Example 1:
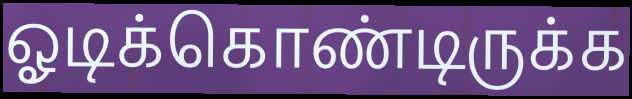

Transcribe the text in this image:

ஓடிக்கொண்டிருக்க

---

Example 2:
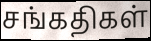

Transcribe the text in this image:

சங்கதிகள்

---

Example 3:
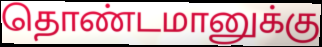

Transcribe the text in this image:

தொண்டமானுக்கு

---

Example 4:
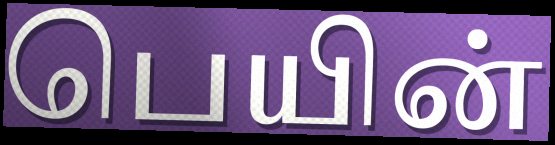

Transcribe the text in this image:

பெயின்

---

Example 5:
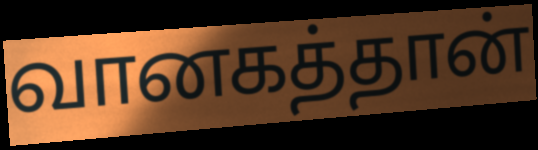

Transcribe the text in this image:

வானகத்தான்